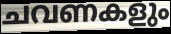
ചവണകളും